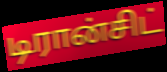
டிரான்சிட்